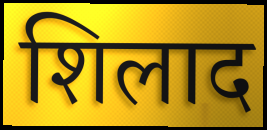
शिलाद